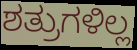
ಶತ್ರುಗಳಿಲ್ಲ